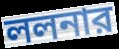
ললনার